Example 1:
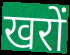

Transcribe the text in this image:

खरों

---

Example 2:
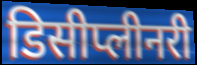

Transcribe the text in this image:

डिसीप्लीनरी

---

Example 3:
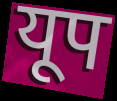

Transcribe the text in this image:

यूप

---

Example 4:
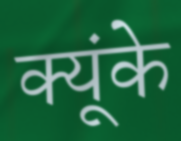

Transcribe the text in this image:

क्यूंके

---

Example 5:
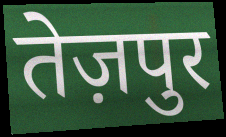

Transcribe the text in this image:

तेज़पुर